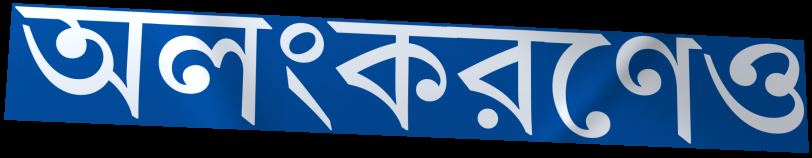
অলংকরণেও